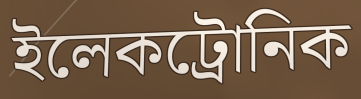
ইলেকট্রোনিক